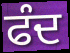
ਫੰਦ